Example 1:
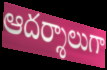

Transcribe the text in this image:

ఆదర్శాలుగా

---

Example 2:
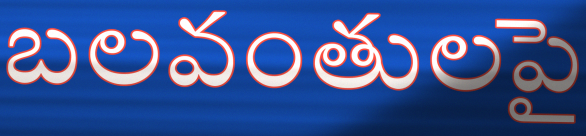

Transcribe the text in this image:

బలవంతులపై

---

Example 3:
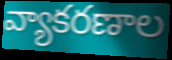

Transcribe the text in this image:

వ్యాకరణాల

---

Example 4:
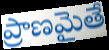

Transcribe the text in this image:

ప్రాణమైతే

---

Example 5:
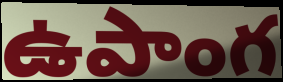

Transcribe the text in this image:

ఉపాంగ